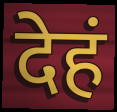
देहं